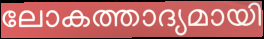
ലോകത്താദ്യമായി